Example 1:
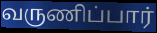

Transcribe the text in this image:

வருணிப்பார்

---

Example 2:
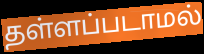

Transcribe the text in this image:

தள்ளப்படாமல்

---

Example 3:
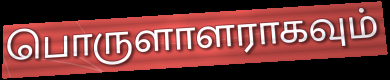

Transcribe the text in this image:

பொருளாளராகவும்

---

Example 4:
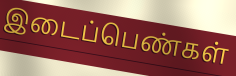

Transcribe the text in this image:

இடைப்பெண்கள்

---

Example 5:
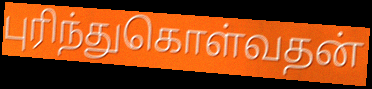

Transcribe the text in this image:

புரிந்துகொள்வதன்